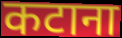
कटाना